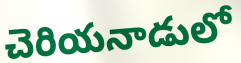
చెరియనాడులో